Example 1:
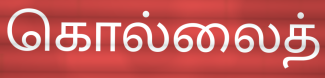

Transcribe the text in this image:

கொல்லைத்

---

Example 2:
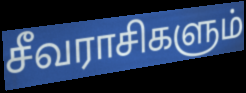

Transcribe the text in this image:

சீவராசிகளும்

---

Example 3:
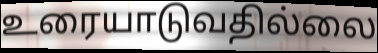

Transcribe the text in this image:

உரையாடுவதில்லை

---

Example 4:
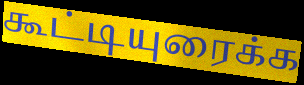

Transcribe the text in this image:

கூட்டியுரைக்க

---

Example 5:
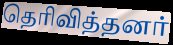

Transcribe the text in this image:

தெரிவித்தனர்